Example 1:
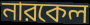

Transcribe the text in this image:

নারকেল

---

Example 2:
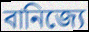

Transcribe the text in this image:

বানিজ্যে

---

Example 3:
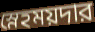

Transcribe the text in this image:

স্নেহময়দার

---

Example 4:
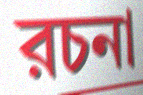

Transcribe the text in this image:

রচনা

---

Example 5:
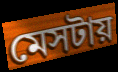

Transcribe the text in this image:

মেসটায়